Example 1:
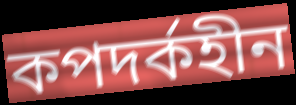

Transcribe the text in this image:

কপদর্কহীন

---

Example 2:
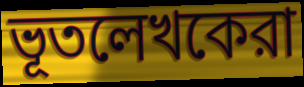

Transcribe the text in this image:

ভূতলেখকেরা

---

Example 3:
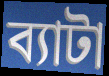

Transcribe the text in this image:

ব্যাটা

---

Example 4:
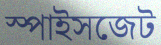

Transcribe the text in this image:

স্পাইসজেট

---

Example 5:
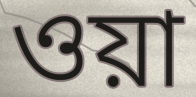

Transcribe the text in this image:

ওয়া